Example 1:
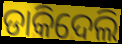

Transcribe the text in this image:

ଡାକିଦେଲି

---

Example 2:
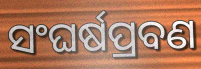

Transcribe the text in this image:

ସଂଘର୍ଷପ୍ରବଣ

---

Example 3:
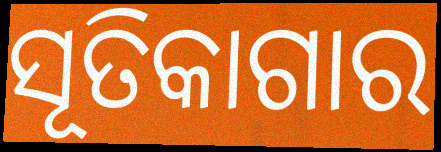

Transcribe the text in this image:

ସୂତିକାଗାର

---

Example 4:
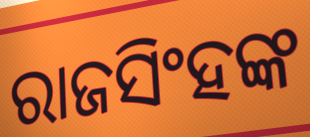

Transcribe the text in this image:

ରାଜସିଂହଙ୍କ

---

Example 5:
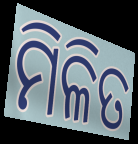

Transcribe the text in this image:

ମିଳିତ